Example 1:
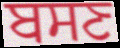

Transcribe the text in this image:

ਬਸਣ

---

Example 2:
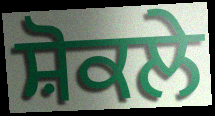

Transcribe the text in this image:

ਸ਼ੋਕਲੇ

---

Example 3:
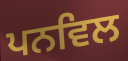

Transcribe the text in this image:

ਪਨਵਿਲ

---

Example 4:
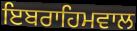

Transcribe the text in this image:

ਇਬਰਾਹਿਮਵਾਲ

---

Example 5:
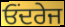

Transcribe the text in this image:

ਓਂਦਰੇਜ